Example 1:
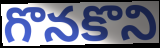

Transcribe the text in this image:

గొనకొని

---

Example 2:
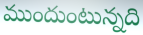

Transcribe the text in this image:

ముందుంటున్నది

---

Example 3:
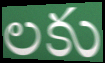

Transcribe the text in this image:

లకు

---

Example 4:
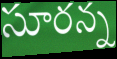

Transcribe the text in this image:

సూరన్న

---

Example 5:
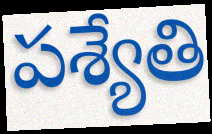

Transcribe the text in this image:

పశ్యేతి